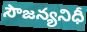
సౌజన్యనిధీ